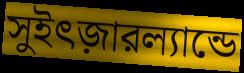
সুইৎজ়ারল্যান্ডে